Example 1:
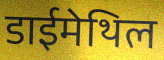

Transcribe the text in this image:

डाईमेथिल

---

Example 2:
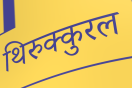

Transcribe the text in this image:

थिरुक्कुरल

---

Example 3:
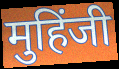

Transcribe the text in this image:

मुहिंजी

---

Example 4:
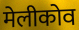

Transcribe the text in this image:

मेलीकोव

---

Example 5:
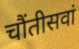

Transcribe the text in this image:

चौंतीसवां